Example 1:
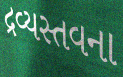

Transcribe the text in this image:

દ્રવ્યસ્તવના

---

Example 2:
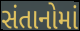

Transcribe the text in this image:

સંતાનોમાં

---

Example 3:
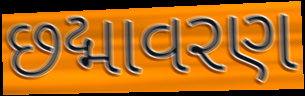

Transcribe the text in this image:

છદ્માવરણ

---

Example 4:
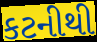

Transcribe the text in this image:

કટનીથી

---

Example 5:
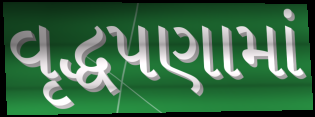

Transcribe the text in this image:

વૃદ્ધપણામાં